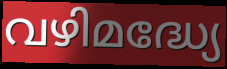
വഴിമദ്ധ്യേ